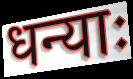
धन्याः